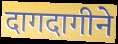
दागदागीने